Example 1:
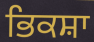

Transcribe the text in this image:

ਭਿਕਸ਼ਾ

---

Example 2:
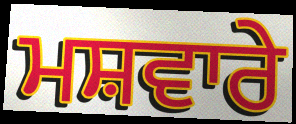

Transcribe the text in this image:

ਮਸ਼ਵਾਰੇ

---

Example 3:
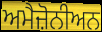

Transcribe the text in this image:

ਅਮੈਜ਼ੋਨੀਅਨ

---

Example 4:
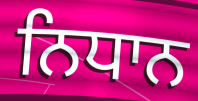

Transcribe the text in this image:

ਨਿਧਾਨ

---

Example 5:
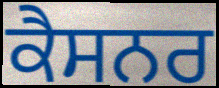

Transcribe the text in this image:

ਕੈਸਨਰ